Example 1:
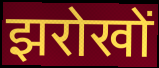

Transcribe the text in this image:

झरोखों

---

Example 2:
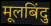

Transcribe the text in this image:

मूलबिंदु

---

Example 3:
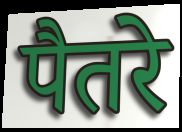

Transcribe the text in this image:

पैतरे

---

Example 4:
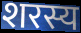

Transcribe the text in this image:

शरस्य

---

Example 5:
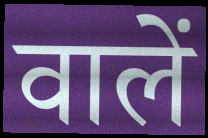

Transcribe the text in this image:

वालें